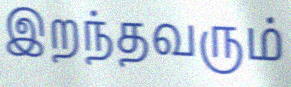
இறந்தவரும்